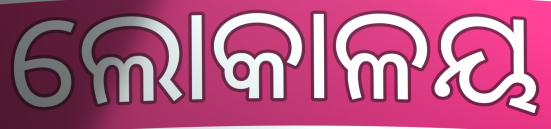
ଲୋକାଳୟ